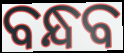
ବନ୍ଧବ